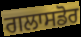
ਗਲਾਸਡੋਰ